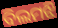
ବିଲମଝି